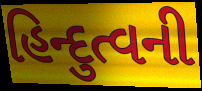
હિન્દુત્વની